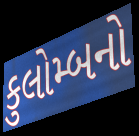
કુલોમ્બનો